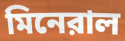
মিনেরাল